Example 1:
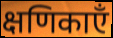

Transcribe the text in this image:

क्षणिकाएँ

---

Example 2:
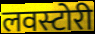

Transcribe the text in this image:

लवस्‍टोरी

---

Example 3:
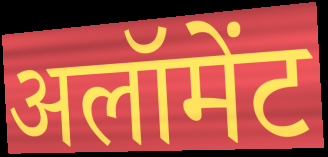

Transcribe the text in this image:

अलॉमेंट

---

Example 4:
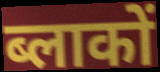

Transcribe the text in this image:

ब्लाकों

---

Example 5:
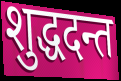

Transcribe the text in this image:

शुद्धदन्त